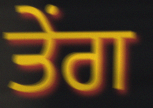
ਤੇਂਗ